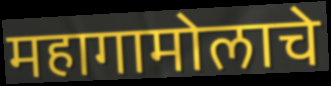
महागामोलाचे